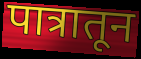
पात्रातून